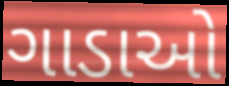
ગાડાઓ